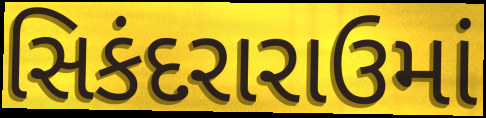
સિકંદરારાઉમાં